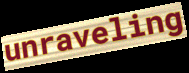
unraveling